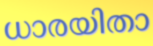
ധാരയിതാ